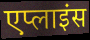
एप्लाइंस